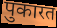
पुकारत